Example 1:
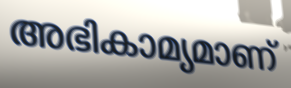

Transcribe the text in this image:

അഭികാമ്യമാണ്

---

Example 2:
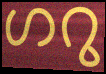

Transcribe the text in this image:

ഗറു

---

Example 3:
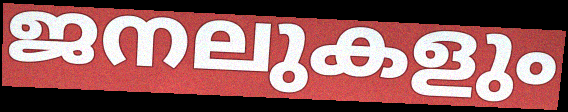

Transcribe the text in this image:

ജനലുകളും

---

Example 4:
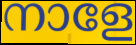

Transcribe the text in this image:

നാളേ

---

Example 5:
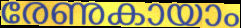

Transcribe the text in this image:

രേണുകായാം